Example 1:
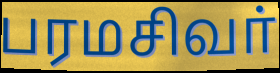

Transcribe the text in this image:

பரமசிவர்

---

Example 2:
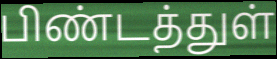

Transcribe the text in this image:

பிண்டத்துள்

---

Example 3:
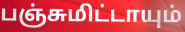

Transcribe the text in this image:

பஞ்சுமிட்டாயும்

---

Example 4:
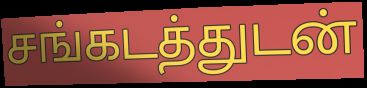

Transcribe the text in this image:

சங்கடத்துடன்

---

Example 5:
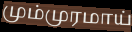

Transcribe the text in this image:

மும்முரமாய்